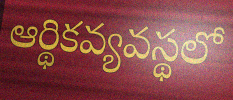
ఆర్థికవ్యవస్థలో